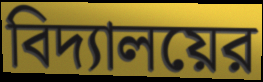
বিদ্যালয়ের